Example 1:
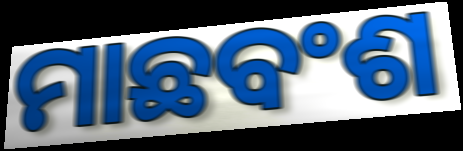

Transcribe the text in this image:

ମାଛବଂଶ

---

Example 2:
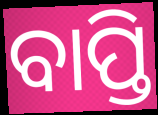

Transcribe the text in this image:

ବାପ୍ତି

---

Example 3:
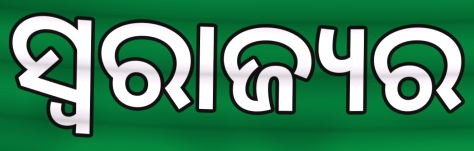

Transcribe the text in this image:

ସ୍ବରାଜ୍ୟର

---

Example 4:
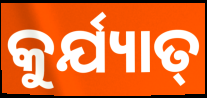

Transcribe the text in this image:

କୁର୍ଯ୍ୟାତ୍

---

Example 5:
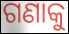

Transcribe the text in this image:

ଗଣାକୁ